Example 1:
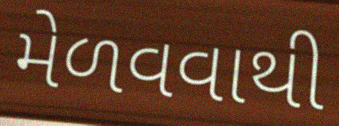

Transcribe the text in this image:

મેળવવાથી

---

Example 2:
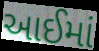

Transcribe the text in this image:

આઈમાં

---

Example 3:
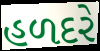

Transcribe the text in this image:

હળદરે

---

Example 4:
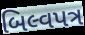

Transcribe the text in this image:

બિલ્વપત્ર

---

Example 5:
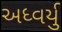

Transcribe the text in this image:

અધ્વર્યુ